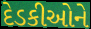
દેડકીઓને